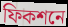
ফিকশনে